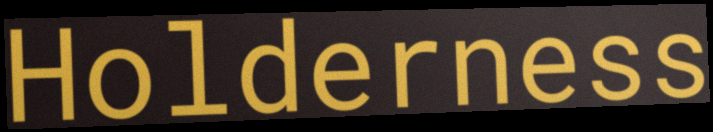
Holderness